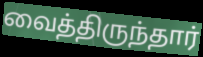
வைத்திருந்தார்